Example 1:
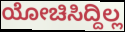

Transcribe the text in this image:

ಯೋಚಿಸಿದ್ದಿಲ್ಲ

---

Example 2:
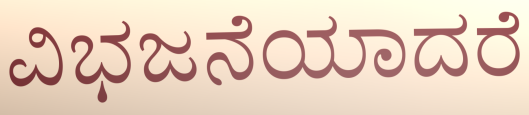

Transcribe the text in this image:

ವಿಭಜನೆಯಾದರೆ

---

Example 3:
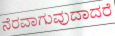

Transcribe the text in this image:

ನೆರವಾಗುವುದಾದರೆ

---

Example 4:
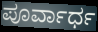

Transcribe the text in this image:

ಪೂರ್ವಾರ್ಧ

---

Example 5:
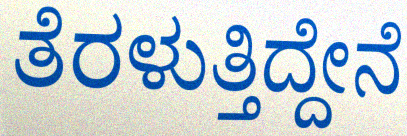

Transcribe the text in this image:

ತೆರಳುತ್ತಿದ್ದೇನೆ